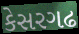
કેસરગઢ